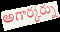
అగార్కర్ను